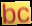
bc